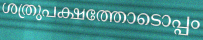
ശത്രുപക്ഷത്തോടൊപ്പം